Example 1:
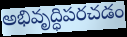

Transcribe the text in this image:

అభివృద్ధిపరచడం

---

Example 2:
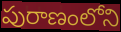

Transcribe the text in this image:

పురాణంలోని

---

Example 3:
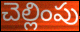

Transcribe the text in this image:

చెల్లింపు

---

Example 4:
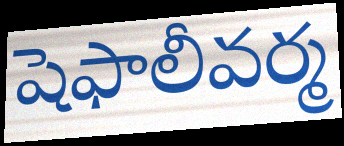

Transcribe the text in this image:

షెఫాలీవర్మ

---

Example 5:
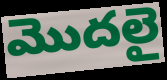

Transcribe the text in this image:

మొదలై